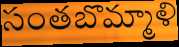
సంతబొమ్మాళి